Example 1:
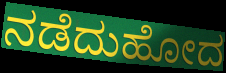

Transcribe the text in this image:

ನಡೆದುಹೋದ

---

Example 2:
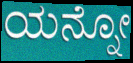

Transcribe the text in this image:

ಯನ್ನೋ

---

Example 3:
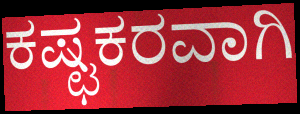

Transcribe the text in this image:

ಕಷ್ಟಕರವಾಗಿ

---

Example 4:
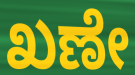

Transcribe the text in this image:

ಖಣೇ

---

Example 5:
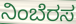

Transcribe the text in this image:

ನಿಂಬೆರಸ